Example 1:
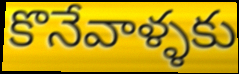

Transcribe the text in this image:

కొనేవాళ్ళకు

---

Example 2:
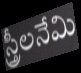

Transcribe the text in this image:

స్త్రీలనేమి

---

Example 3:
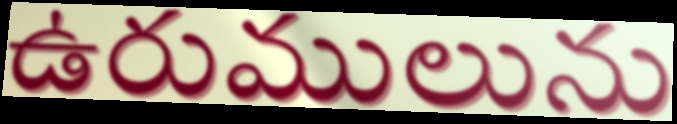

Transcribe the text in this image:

ఉరుములును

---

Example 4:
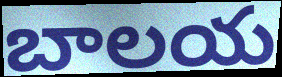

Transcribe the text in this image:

బాలయ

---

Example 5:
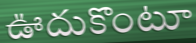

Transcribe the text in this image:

ఊదుకొంటూ